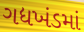
ગદ્યખંડમાં